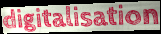
digitalisation